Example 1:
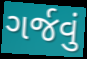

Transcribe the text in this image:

ગર્જવું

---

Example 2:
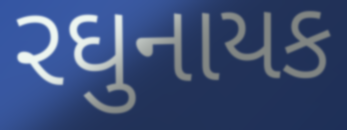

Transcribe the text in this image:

રઘુનાયક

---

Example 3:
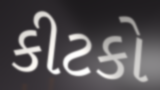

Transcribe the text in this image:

કીટકો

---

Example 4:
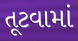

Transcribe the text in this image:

તૂટવામાં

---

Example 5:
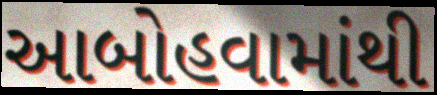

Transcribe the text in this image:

આબોહવામાંથી